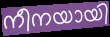
നീനയായി